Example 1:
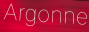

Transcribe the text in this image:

Argonne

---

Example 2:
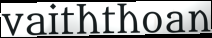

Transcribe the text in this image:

vaiththoan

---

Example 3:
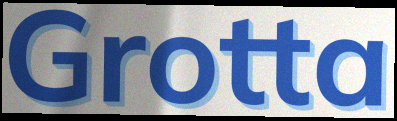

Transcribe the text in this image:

Grotta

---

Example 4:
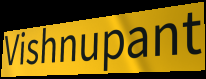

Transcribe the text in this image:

Vishnupant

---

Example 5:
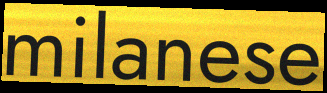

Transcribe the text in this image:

milanese